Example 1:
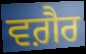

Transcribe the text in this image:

ਵਗ਼ੈਰ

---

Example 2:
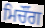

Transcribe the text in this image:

ਮਿਚੌਂਗ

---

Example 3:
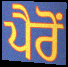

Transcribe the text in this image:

ਪੈਰੋਂ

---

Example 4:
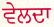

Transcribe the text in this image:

ਵੇਲਦਾ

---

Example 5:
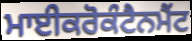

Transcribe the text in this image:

ਮਾਈਕਰੋਕੰਟੈਨਮੈਂਟ